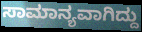
ಸಾಮಾನ್ಯವಾಗಿದ್ದು